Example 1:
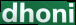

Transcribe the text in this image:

dhoni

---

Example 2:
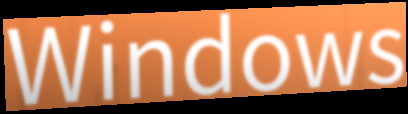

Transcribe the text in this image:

Windows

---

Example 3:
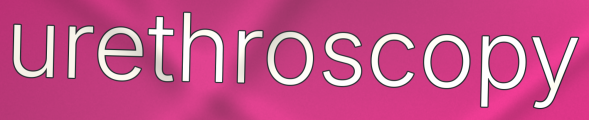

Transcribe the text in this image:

urethroscopy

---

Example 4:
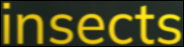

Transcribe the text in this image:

insects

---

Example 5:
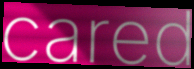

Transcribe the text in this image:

cared